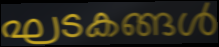
ഘടകങ്ങൾ